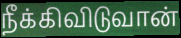
நீக்கிவிடுவான்